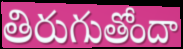
తిరుగుతోందా